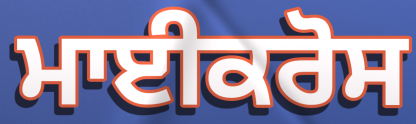
ਮਾਈਕਰੋਸ